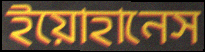
ইয়োহানেস